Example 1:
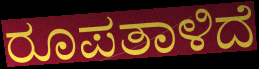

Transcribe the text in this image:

ರೂಪತಾಳಿದೆ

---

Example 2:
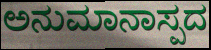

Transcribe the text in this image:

ಅನುಮಾನಾಸ್ಪದ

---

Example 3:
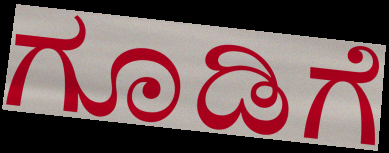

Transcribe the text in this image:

ಗೂಡಿಗೆ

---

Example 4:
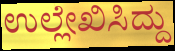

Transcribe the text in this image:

ಉಲ್ಲೇಖಿಸಿದ್ದು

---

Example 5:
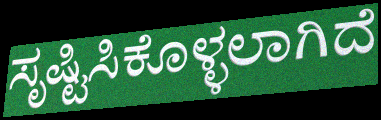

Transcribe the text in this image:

ಸೃಷ್ಟಿಸಿಕೊಳ್ಳಲಾಗಿದೆ